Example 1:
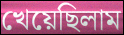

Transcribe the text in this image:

খেয়েছিলাম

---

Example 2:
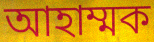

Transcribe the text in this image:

আহাম্মক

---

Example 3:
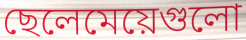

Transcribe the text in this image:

ছেলেমেয়েগুলো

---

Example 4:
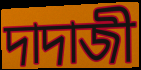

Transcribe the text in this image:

দাদাজী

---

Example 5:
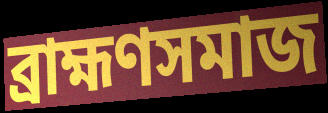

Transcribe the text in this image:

ব্রাহ্মণসমাজ